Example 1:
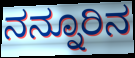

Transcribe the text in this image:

ನನ್ನೂರಿನ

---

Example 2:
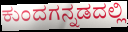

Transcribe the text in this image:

ಕುಂದಗನ್ನಡದಲ್ಲಿ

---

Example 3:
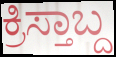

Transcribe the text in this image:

ಕ್ರಿಸ್ತಾಬ್ದ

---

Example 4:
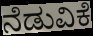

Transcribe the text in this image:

ನೆಡುವಿಕೆ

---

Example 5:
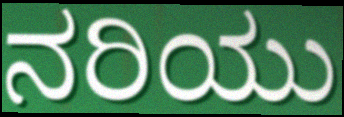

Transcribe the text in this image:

ನರಿಯು